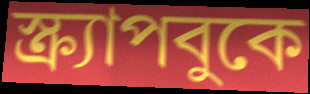
স্ক্র্যাপবুকে